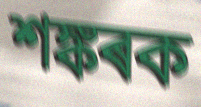
শঙ্কৰক